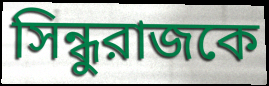
সিন্ধুরাজকে